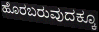
ಹೊರಬರುವುದಕ್ಕೂ